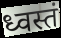
ध्वस्तं